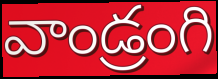
వాండ్రంగి